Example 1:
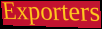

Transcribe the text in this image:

Exporters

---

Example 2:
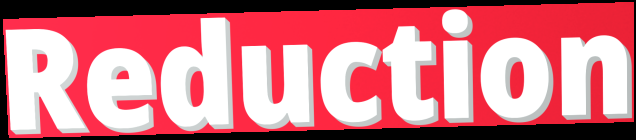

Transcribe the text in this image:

Reduction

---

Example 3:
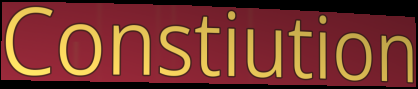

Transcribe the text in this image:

Constiution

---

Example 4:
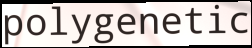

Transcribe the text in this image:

polygenetic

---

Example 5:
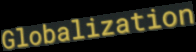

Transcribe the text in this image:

Globalization